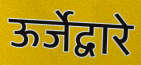
ऊर्जेद्वारे